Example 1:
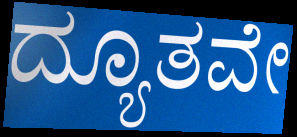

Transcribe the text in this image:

ದ್ಯೂತವೇ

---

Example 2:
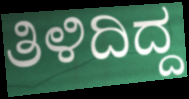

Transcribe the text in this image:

ತಿಳಿದಿದ್ದ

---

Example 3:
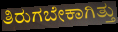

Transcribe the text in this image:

ತಿರುಗಬೇಕಾಗಿತ್ತು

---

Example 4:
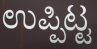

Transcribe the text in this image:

ಉಪ್ಪಿಟ್ಟ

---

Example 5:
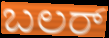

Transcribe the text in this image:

ಬಲರ್